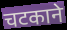
चटकाने